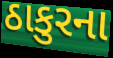
ઠાકુરના